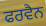
ਫਰਵੈਨ